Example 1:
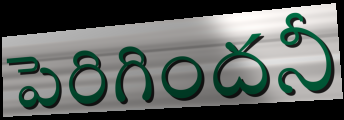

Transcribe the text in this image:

పెరిగిందనీ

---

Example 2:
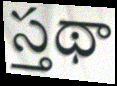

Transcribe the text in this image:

స్తథా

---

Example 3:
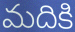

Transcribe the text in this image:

మదికి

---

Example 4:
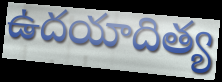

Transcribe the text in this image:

ఉదయాదిత్య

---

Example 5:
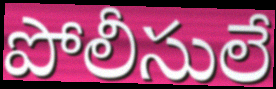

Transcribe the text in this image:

పోలీసులే